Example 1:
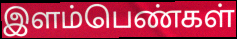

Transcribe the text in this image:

இளம்பெண்கள்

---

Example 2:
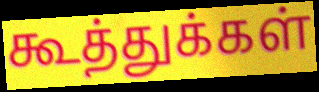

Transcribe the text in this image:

கூத்துக்கள்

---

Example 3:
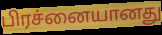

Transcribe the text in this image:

பிரச்னையானது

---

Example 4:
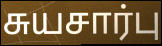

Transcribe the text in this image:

சுயசார்பு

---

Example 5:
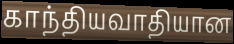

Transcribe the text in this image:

காந்தியவாதியான